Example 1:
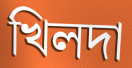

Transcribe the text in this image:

খিলদা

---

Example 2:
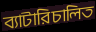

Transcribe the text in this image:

ব্যাটারিচালিত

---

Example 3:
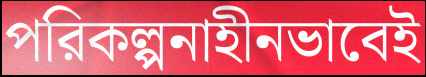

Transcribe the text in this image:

পরিকল্পনাহীনভাবেই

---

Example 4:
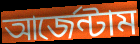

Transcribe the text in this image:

আর্জেন্টাম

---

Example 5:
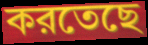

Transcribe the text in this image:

করতেছে